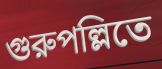
গুরুপল্লিতে